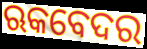
ଋକବେଦର